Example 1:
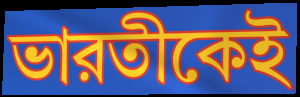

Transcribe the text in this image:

ভারতীকেই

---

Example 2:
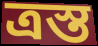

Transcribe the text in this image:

ত্রস্ত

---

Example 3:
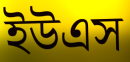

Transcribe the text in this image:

ইউএস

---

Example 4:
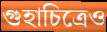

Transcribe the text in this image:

গুহাচিত্রেও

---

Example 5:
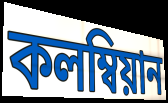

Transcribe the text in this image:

কলম্বিয়ান